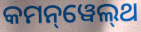
କମନ୍‌ୱେଲ୍‌ଥ